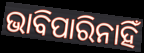
ଭାବିପାରିନାହିଁ